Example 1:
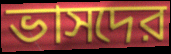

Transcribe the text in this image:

ভাসদের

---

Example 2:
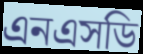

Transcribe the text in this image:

এনএসডি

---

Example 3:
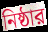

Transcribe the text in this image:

নিষ্ঠার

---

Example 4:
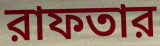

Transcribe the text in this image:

রাফতার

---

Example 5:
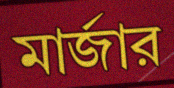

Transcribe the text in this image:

মার্জার